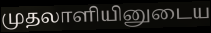
முதலாளியினுடைய